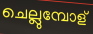
ചെല്ലുമ്പോള്